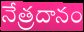
నేత్రదానం